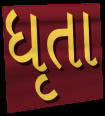
ધૃતા